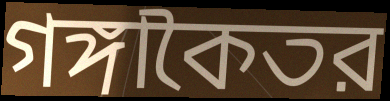
গঙ্গাকৈতর